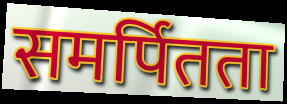
समर्पितता